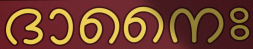
ദാനൈഃ